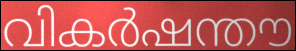
വികർഷന്തൗ